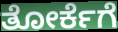
ತೋರ್ಕೆಗೆ